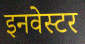
इनवेस्टर